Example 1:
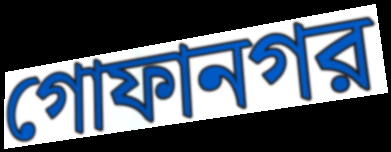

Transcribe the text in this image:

গোফানগর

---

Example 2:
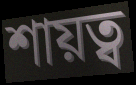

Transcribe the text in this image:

শায়ত্ব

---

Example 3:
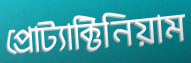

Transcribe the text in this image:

প্রোট্যাক্টিনিয়াম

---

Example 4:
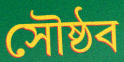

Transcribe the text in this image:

সৌষ্ঠব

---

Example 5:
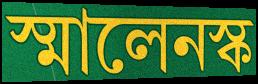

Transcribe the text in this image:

স্মালেনস্ক